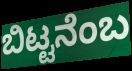
ಬಿಟ್ಟನೆಂಬ